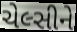
ચેલ્સીને